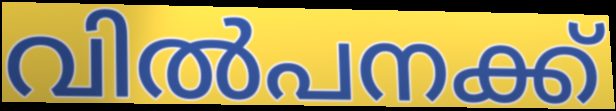
വിൽപനക്ക്